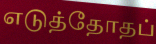
எடுத்தோதப்